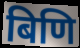
बिणि